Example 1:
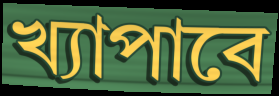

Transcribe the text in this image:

খ্যাপাবে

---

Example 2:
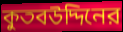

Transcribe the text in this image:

কুতবউদ্দিনের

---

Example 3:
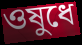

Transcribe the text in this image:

ওষুধে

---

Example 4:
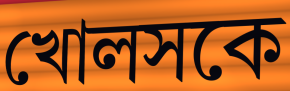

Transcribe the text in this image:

খোলসকে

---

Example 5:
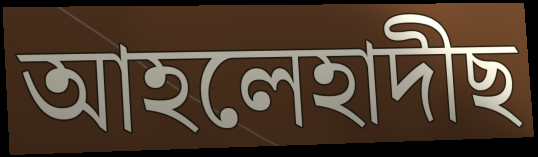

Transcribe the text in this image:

আহলেহাদীছ